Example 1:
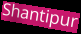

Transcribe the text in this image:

Shantipur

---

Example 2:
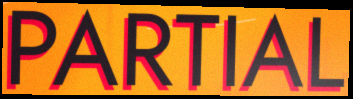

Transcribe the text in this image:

PARTIAL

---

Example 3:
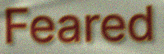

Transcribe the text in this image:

Feared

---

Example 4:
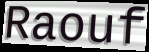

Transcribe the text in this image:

Raouf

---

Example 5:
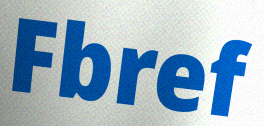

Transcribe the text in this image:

Fbref